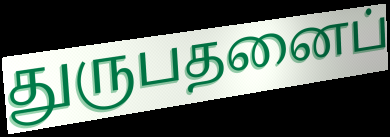
துருபதனைப்